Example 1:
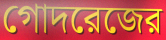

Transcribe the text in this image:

গোদরেজের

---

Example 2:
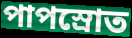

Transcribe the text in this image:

পাপস্রোত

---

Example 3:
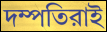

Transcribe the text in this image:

দম্পতিরাই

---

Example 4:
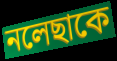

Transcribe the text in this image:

নলেছাকে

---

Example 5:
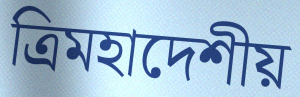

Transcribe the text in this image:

ত্রিমহাদেশীয়